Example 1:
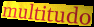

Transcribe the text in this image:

multitudo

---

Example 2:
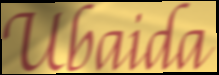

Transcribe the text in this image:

Ubaida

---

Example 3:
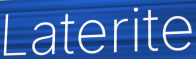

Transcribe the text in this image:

Laterite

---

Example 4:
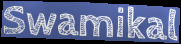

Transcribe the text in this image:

Swamikal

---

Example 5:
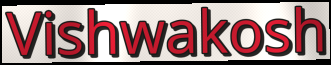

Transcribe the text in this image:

Vishwakosh